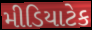
મીડિયાટેક